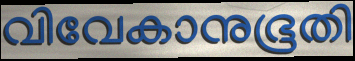
വിവേകാനുഭൂതി